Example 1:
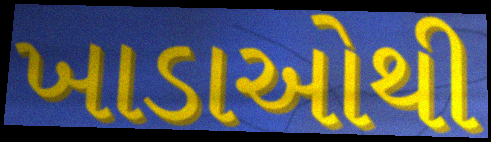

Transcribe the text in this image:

ખાડાઓથી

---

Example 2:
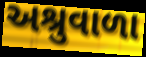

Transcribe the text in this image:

અશ્રુવાળા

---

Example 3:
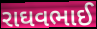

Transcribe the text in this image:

રાઘવભાઈ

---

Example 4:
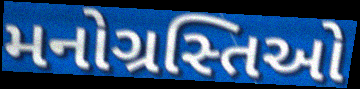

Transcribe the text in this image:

મનોગ્રસ્તિઓ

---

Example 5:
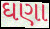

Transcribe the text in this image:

ઘણા